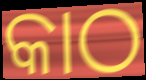
କାଠ